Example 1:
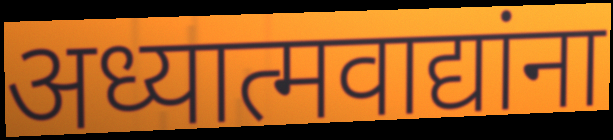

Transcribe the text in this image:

अध्यात्मवाद्यांना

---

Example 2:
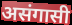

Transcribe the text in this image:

असंगासी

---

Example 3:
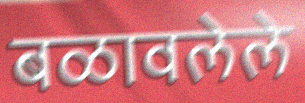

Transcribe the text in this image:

बळावलेले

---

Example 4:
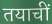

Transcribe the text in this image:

तयाचीं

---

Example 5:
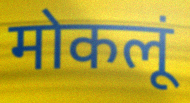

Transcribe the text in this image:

मोकलूं